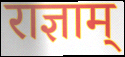
राज्ञाम्